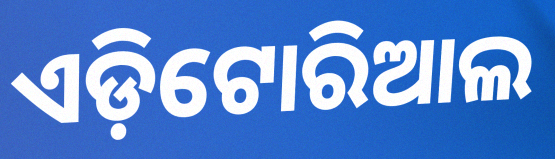
ଏଡ଼ିଟୋରିଆଲ